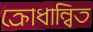
ক্ৰোধান্বিত